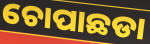
ଚୋପାଛଡା